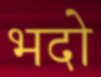
भदो